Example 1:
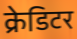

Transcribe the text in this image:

क्रेडिटर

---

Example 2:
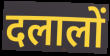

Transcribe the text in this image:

दलालों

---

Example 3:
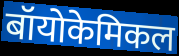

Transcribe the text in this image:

बॉयोकेमिकल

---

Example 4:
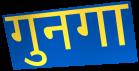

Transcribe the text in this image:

गुनगा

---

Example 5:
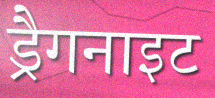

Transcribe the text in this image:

ड्रैगनाइट